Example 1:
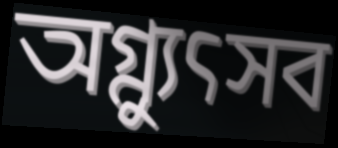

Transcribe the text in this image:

অগ্ন্যুৎসব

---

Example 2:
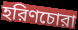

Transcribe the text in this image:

হরিণচোরা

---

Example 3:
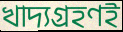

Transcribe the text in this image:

খাদ্যগ্রহণই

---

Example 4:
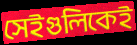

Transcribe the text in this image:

সেইগুলিকেই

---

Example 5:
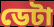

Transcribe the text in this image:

ডেটা